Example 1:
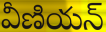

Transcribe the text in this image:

వీణియన్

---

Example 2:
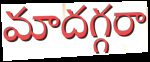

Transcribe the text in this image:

మాదగ్గరా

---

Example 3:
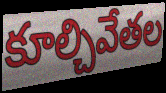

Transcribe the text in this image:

కూల్చివేతల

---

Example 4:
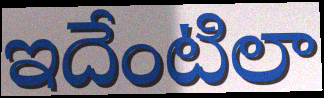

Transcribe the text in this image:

ఇదేంటిలా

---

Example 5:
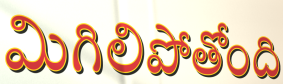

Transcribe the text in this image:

మిగిలిపోతోంది